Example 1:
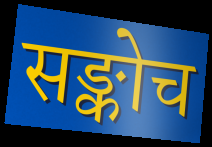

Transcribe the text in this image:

सङ्कोच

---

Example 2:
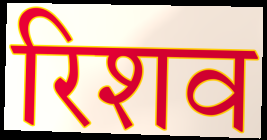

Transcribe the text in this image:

रिशव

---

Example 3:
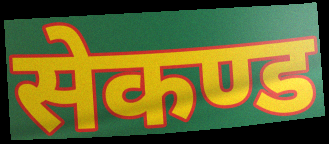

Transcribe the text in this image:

सेकण्ड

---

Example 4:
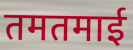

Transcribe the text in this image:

तमतमाई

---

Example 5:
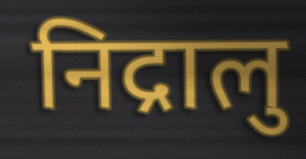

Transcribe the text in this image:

निद्रालु